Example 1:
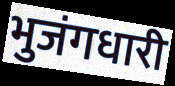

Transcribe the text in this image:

भुजंगधारी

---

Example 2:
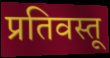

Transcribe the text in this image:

प्रतिवस्तू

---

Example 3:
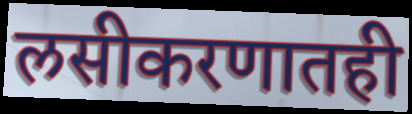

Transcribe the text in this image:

लसीकरणातही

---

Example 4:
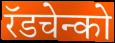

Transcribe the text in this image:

रॅडचेन्को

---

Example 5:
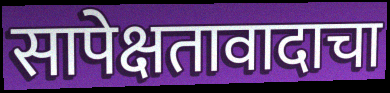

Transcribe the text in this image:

सापेक्षतावादाचा